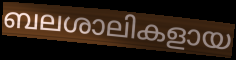
ബലശാലികളായ